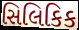
સિલિકિક